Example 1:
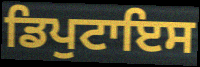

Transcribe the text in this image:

ਡਿਪੁਟਾਇਸ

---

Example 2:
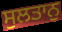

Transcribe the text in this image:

ਸੁਲਤਾਨੁ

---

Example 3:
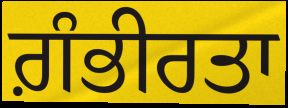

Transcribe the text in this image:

ਗ਼ੰਭੀਰਤਾ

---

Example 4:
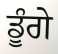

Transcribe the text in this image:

ਡੂੰਗੇ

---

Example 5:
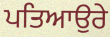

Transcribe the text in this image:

ਪਤਿਆਉਰੇ